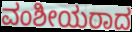
ವಂಶೀಯರಾದ